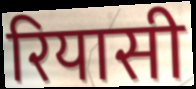
रियासी